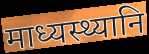
माध्यस्थ्यानि